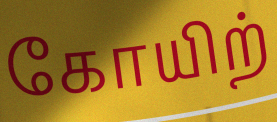
கோயிற்